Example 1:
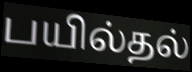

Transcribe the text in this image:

பயில்தல்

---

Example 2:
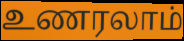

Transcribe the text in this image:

உணரலாம்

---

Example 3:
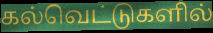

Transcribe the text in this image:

கல்வெட்டுகளில்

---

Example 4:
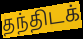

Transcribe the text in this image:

தந்திடக்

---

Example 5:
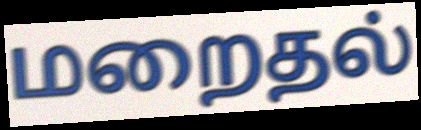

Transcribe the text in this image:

மறைதல்